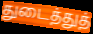
துடைத்துத்